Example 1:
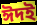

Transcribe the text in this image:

ঈদই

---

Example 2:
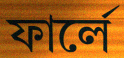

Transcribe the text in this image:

ফার্লে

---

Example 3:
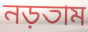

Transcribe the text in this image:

নড়তাম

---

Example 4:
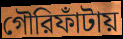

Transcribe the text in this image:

গৌরিফাঁটায়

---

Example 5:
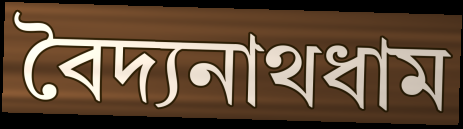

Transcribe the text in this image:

বৈদ্যনাথধাম